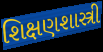
શિક્ષણશાસ્ત્રી